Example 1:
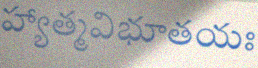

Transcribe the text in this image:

హ్యాత్మవిభూతయః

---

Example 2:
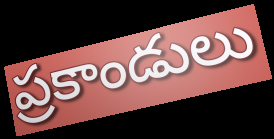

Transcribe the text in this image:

ప్రకాండులు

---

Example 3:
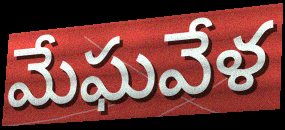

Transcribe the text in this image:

మేఘవేళ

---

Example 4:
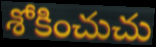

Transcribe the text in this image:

శోకించుచు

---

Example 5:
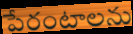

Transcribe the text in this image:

పేరంటాలను